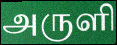
அருளி